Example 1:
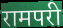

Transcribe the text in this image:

रामपरी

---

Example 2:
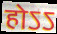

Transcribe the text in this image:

होऽऽ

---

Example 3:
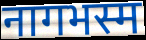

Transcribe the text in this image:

नागभस्म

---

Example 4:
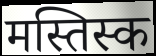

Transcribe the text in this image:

मस्तिस्क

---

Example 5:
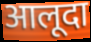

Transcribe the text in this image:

आलूदा